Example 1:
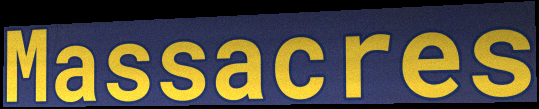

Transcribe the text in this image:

Massacres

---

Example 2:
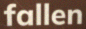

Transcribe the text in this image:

fallen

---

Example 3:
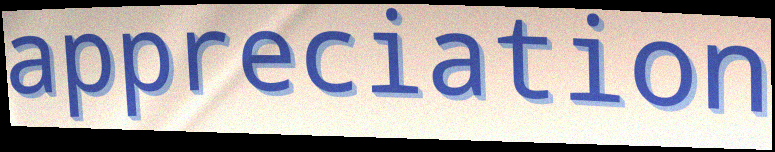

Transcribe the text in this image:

appreciation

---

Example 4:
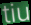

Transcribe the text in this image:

tiu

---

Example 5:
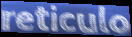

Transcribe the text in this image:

reticulo